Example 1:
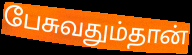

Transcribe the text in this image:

பேசுவதும்தான்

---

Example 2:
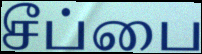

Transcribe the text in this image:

சீப்பை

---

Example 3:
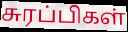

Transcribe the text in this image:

சுரப்பிகள்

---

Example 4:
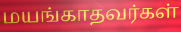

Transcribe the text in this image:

மயங்காதவர்கள்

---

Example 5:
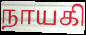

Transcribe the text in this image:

நாயகி